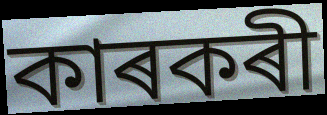
কাৰকৰী